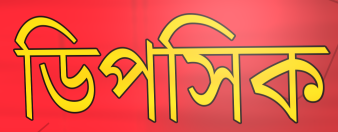
ডিপসিক